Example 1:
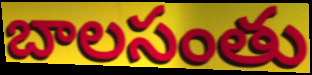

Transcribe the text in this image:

బాలసంతు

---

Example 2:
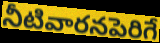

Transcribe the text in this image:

నీటివారనపెరిగే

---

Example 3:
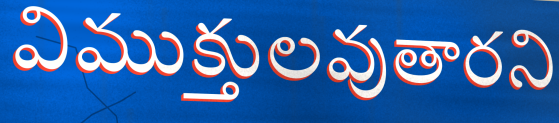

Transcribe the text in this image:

విముక్తులవుతారని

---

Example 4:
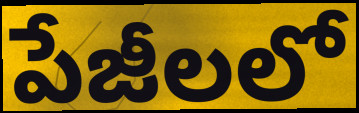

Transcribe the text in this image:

పేజీలలో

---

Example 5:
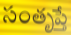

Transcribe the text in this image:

సంతృప్తే